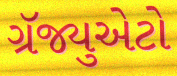
ગ્રૅજ્યુએટો